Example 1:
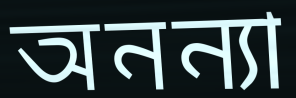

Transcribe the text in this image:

অনন্যা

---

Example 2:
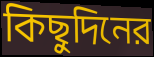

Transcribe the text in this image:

কিছুদিনের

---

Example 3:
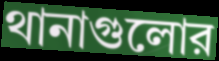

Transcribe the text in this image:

থানাগুলোর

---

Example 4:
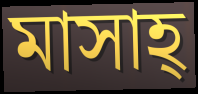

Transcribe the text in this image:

মাসাহ্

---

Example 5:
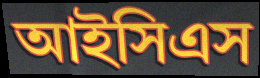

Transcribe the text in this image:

আইসিএস